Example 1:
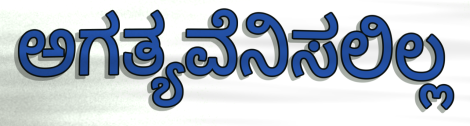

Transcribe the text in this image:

ಅಗತ್ಯವೆನಿಸಲಿಲ್ಲ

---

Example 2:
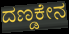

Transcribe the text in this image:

ದಣ್ಡಕೇನ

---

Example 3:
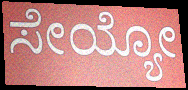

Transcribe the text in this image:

ಸೇಯ್ಯೋ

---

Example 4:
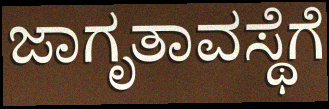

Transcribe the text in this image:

ಜಾಗೃತಾವಸ್ಥೆಗೆ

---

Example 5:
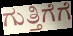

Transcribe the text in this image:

ಗುತ್ತಿಗೆಗೆ